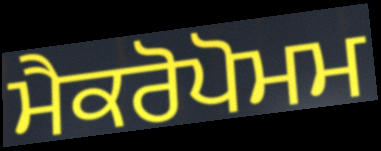
ਮੈਕਰੋਪੋਮਮ